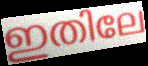
ഇതിലേ